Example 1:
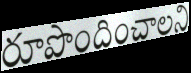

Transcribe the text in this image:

రూపొందించాలని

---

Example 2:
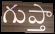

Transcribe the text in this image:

గుప్తా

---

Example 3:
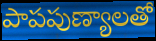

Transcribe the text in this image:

పాపపుణ్యాలతో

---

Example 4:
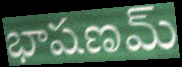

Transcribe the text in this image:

భాషణమ్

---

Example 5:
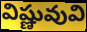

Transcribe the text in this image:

విష్ణువువి